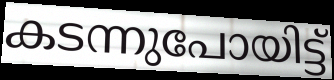
കടന്നുപോയിട്ട്